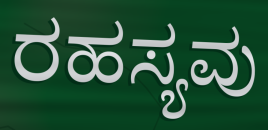
ರಹಸ್ಯವು